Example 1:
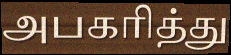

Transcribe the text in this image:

அபகரித்து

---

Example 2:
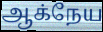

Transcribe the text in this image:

ஆக்நேய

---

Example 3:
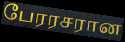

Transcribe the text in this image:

பேரரசரான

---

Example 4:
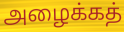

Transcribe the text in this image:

அழைக்கத்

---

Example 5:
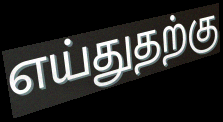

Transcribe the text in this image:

எய்துதற்கு